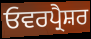
ਓਵਰਪ੍ਰੈਸ਼ਰ